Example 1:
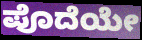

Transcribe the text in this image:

ಪೊದೆಯೇ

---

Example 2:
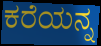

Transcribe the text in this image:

ಕರೆಯನ್ನ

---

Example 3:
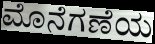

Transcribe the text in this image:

ಮೊನೆಗಣೆಯ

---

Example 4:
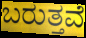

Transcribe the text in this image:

ಬರುತ್ತವೆ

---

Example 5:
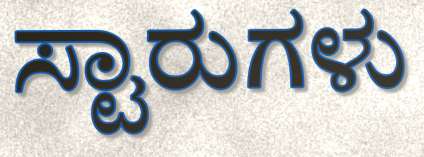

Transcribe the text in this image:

ಸ್ಟಾರುಗಳು